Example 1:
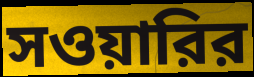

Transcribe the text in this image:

সওয়ারির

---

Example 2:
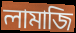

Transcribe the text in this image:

লামাজি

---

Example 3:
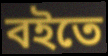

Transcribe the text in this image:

বইতে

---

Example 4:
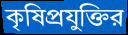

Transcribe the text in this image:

কৃষিপ্রযুক্তির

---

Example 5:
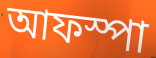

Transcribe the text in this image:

আফস্পা